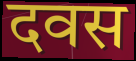
दवस